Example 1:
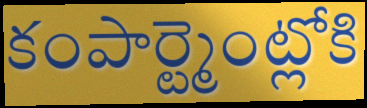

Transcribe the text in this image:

కంపార్ట్మెంట్లోకి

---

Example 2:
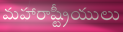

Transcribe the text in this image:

మహారాష్ట్రీయులు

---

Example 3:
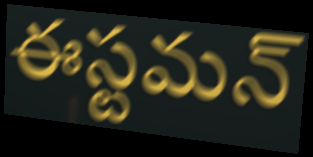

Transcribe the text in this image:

ఈస్టమన్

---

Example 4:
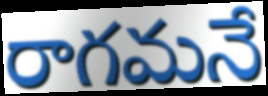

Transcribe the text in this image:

రాగమనే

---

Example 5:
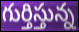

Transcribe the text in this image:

గుర్తిస్తున్న